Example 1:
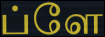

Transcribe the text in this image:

ப்ளே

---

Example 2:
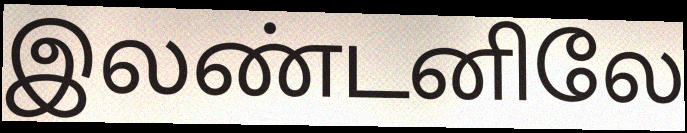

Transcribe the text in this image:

இலண்டனிலே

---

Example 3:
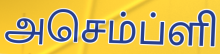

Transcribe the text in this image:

அசெம்ப்ளி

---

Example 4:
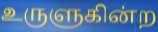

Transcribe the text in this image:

உருளுகின்ற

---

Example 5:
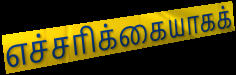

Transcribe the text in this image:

எச்சரிக்கையாகக்